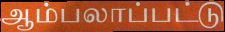
ஆம்பலாப்பட்டு